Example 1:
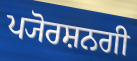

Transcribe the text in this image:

ਪ੍ਯੋਰਸ਼ਨਗੀ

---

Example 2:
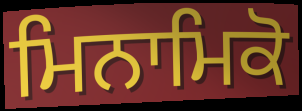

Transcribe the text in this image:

ਮਿਨਾਮਿਕੋ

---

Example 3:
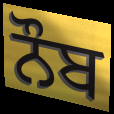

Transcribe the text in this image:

ਨੌਬ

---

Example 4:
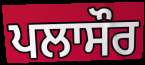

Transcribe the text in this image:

ਪਲਾਸੌਰ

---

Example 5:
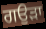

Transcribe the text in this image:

ਗਉੜਾ